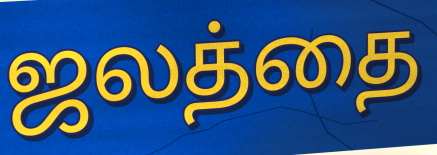
ஜலத்தை